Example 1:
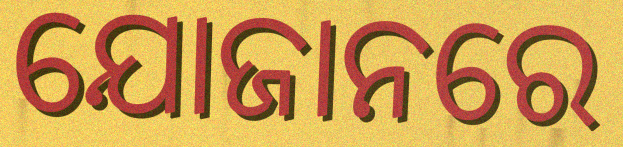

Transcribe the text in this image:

ଯୋଜାନରେ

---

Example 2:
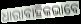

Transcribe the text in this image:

ଧାରାବାହିକଭାବେ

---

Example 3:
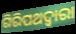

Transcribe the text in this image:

ଗିରିପଥଦ୍ୱାରା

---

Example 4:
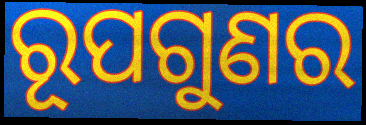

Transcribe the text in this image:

ରୂପଗୁଣର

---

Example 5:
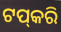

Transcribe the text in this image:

ଟପ୍‌କରି